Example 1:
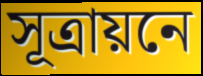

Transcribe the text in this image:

সূত্রায়নে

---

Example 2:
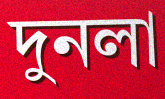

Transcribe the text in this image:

দুনলা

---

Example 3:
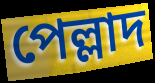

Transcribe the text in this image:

পেল্লাদ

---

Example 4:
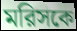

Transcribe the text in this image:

মরিসকে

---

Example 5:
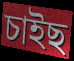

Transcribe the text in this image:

চাইছ